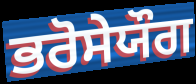
ਭਰੋਸੇਯੌਗ